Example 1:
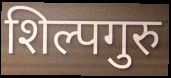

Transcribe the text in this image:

शिल्पगुरु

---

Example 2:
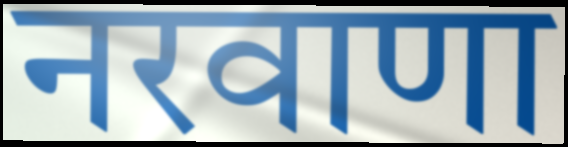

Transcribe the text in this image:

नरवाणा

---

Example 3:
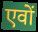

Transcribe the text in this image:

एवों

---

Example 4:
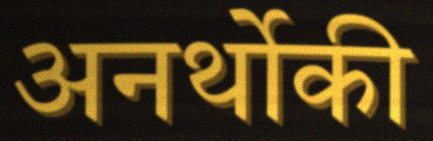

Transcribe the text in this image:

अनर्थोकी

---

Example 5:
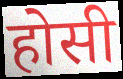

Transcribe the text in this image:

होसी